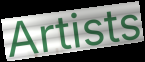
Artists